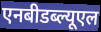
एनबीडब्ल्यूएल